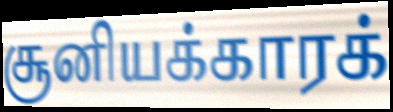
சூனியக்காரக்